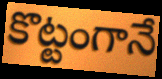
కొట్టంగానే